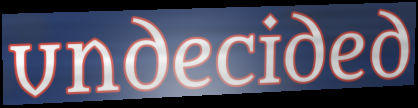
undecided